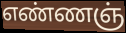
எண்ணஞ்